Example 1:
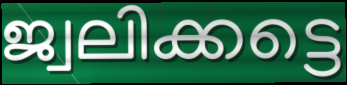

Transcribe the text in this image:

ജ്വലിക്കട്ടെ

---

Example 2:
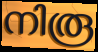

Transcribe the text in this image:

നിരൂ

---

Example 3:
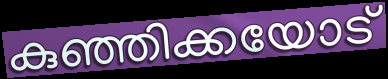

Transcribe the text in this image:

കുഞ്ഞിക്കയോട്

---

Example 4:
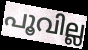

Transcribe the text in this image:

പൂവില്ല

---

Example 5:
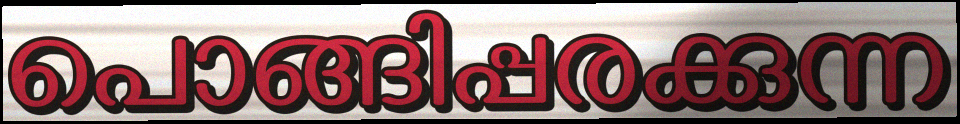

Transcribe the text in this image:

പൊങ്ങിപ്പരക്കുന്ന